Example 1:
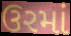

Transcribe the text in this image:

ઉરમાં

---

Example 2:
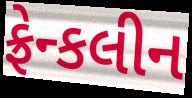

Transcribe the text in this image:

ફ્રેન્કલીન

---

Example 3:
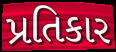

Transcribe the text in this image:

પ્રતિકાર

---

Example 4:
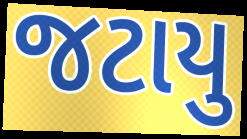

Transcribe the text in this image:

જટાયુ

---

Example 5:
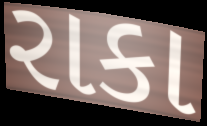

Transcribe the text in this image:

રાકા